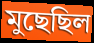
মুছেছিল